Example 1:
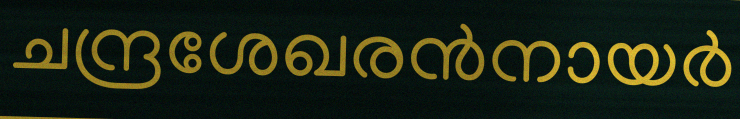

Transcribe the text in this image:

ചന്ദ്രശേഖരൻനായർ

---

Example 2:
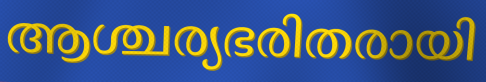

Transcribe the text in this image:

ആശ്ചര്യഭരിതരായി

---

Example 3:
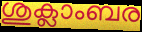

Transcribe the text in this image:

ശുക്ലാംബര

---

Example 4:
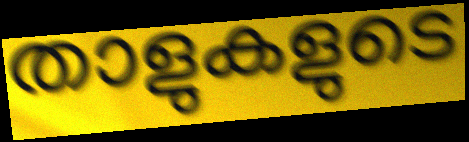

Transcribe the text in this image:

താളുകളുടെ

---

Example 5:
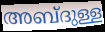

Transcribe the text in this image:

അബ്ദുള്ള